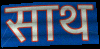
साथ